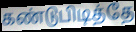
கண்டுபிடித்தே